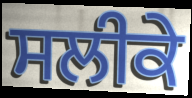
ਸਲੀਕੇ